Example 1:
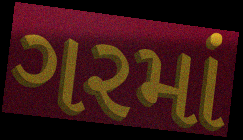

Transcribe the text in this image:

ગરમાં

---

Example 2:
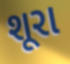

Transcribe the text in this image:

શૂરા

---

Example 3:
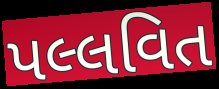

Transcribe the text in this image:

પલ્લવિત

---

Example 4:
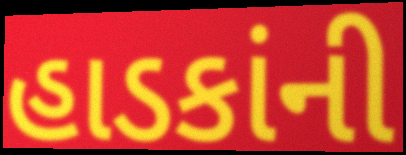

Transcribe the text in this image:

હાડકાંની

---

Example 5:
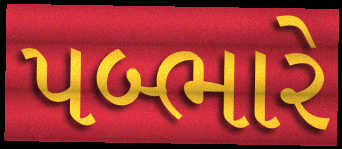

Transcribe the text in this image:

પબ્ભારે